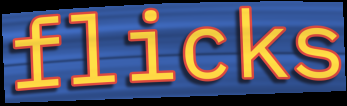
flicks